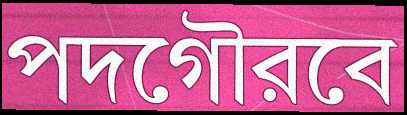
পদগৌরবে